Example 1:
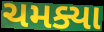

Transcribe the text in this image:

ચમક્યા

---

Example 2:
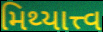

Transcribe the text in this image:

મિથ્યાત્ત્વ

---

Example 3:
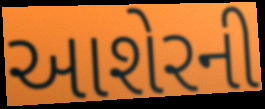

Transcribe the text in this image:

આશેરની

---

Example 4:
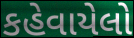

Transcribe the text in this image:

કહેવાયેલો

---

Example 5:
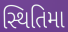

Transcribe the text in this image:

સ્થિતિમા